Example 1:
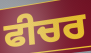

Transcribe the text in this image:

ਫੀਚਰ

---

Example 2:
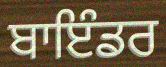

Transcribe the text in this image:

ਬਾਇੰਡਰ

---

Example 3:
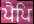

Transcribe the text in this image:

ਪੈਪਿ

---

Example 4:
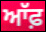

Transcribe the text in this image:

ਆੱਫ਼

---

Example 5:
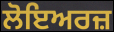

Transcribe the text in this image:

ਲੋਇਅਰਜ਼